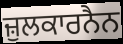
ਜ਼ੁਲਕਾਰਨੈਨ